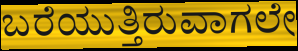
ಬರೆಯುತ್ತಿರುವಾಗಲೇ